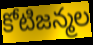
కోటిజన్మల